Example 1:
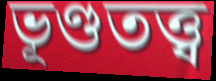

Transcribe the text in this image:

ভূণ্ডতত্ত্ব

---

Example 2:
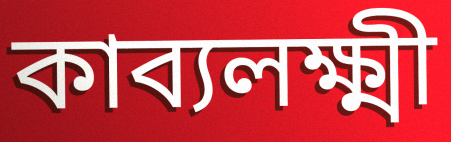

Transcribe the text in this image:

কাব্যলক্ষ্মী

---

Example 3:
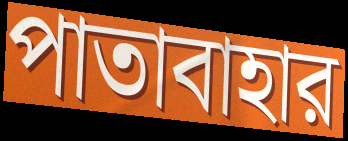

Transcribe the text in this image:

পাতাবাহার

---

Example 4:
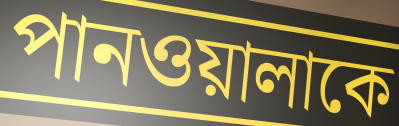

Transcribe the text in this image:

পানওয়ালাকে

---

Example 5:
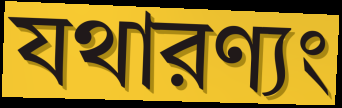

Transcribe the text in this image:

যথারণ্যং